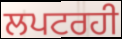
ਲਪਟਰਹੀ